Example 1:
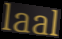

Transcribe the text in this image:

laal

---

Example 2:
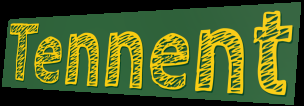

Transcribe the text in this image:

Tennent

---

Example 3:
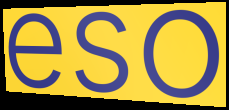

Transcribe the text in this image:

eso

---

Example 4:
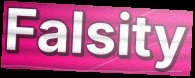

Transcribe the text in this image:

Falsity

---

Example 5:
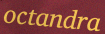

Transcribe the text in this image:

octandra